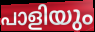
പാളിയും